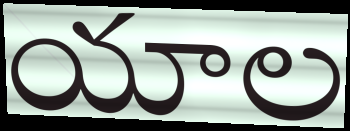
యాల